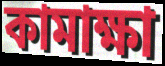
কামাক্ষা